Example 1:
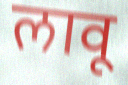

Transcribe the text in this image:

लावू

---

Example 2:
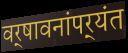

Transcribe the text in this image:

वर्षावनांपर्यंत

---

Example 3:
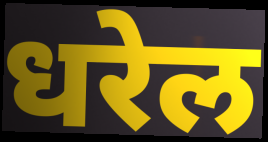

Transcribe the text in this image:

धरेल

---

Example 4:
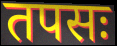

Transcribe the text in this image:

तपसः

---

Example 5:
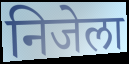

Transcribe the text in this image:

निजेला